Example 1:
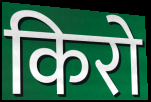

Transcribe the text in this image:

किरो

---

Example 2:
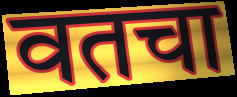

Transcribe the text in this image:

वतचा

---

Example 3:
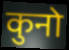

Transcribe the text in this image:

कुनो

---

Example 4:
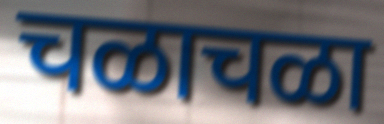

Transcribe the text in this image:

चळाचळा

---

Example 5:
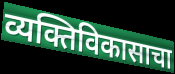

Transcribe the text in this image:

व्यक्तिविकासाचा